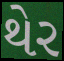
થેર